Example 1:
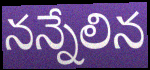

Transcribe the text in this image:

నన్నేలిన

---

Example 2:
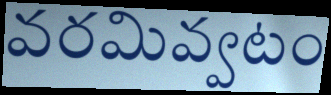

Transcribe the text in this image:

వరమివ్వటం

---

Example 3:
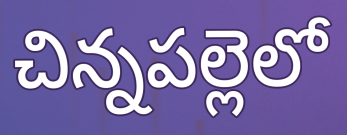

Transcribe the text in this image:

చిన్నపల్లెలో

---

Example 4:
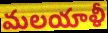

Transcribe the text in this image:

మలయాళీ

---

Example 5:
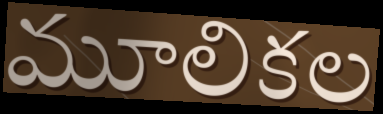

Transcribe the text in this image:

మూలికల